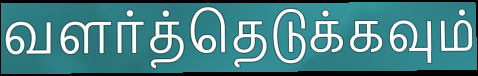
வளர்த்தெடுக்கவும்